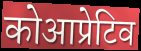
कोआप्रेटिव